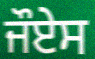
ਜੌਏਸ